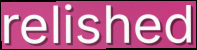
relished